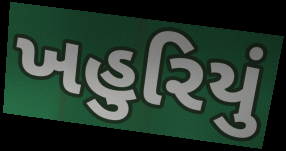
ખહુરિયું